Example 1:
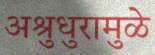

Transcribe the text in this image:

अश्रुधुरामुळे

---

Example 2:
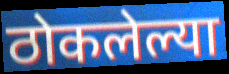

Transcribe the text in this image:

ठोकलेल्या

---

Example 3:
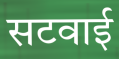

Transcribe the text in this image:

सटवाई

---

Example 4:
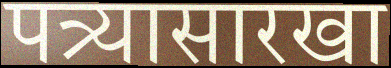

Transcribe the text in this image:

पत्र्यासारखा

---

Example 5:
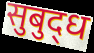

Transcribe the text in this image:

सुबुद्ध